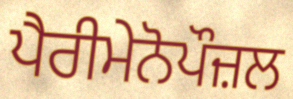
ਪੈਰੀਮੇਨੋਪੌਜ਼ਲ